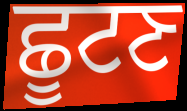
ਛੂਟਣ